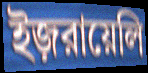
ইজ়রায়েলি